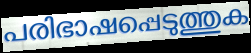
പരിഭാഷപ്പെടുത്തുക